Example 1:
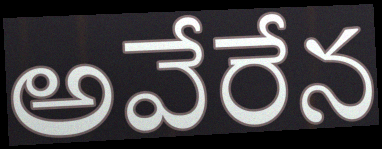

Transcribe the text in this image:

అవేరేన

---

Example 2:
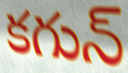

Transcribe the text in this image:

కగున్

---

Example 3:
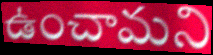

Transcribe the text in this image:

ఉంచామని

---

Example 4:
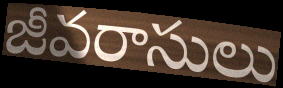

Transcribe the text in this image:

జీవరాసులు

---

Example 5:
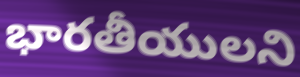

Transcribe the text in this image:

భారతీయులని